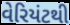
વેરિયંટથી